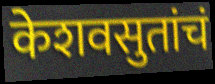
केशवसुतांचं